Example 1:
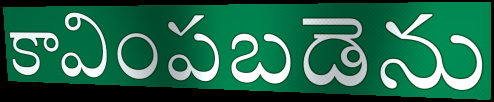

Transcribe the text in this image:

కావింపబడెను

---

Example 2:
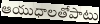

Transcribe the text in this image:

ఆయుధాలతోపాటు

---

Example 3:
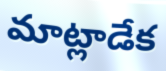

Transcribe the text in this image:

మాట్లాడేక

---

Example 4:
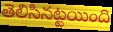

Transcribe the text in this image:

తెలిసినట్టయింది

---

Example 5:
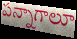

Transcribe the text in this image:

పన్నాగాలూ